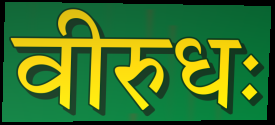
वीरुधः